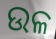
ଉଳ